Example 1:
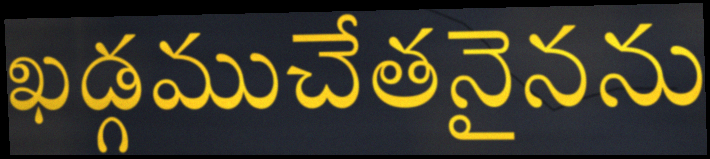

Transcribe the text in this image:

ఖడ్గముచేతనైనను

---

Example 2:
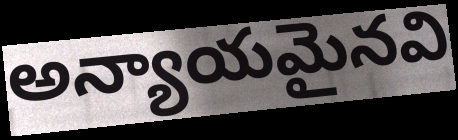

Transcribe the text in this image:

అన్యాయమైనవి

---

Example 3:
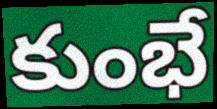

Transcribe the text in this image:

కుంభే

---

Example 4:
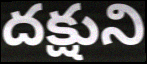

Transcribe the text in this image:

దక్షుని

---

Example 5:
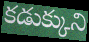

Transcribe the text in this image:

కడుక్కుని